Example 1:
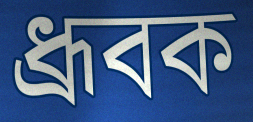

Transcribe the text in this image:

ধ্রূবক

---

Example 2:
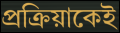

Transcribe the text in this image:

প্রক্রিয়াকেই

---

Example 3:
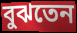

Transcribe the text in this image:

বুঝতেন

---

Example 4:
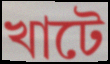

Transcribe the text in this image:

খাটে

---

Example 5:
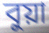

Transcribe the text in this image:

বুয়া